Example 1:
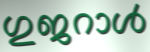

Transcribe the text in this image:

ഗുജറാൾ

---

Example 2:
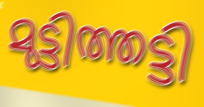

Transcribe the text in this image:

മുട്ടിത്തട്ടി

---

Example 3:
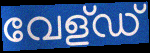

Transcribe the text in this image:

വേള്ഡ്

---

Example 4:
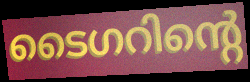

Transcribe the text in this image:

ടൈഗറിന്റെ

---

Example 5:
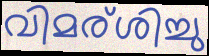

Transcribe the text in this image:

വിമര്ശിച്ചു